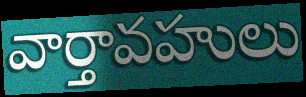
వార్తావహులు